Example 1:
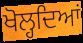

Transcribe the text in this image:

ਖੋਲ੍ਹਦਿਆਂ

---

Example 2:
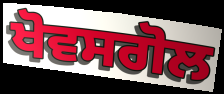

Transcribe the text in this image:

ਖੋਵਸਗੋਲ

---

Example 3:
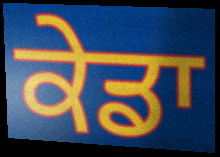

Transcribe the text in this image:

ਕੇਡਾ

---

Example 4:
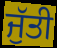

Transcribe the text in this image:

ਜੁੱਤੀ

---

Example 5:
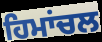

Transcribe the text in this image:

ਹਿਮਾਂਚਲ